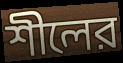
শীলের